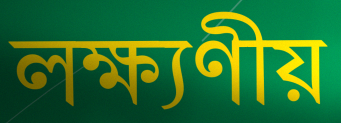
লক্ষ্যণীয়